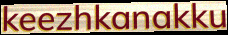
keezhkanakku